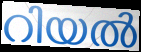
റിയൽ